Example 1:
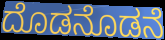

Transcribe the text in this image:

ದೊಡನೊಡನೆ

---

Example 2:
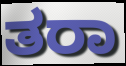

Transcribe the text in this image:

ತರಾ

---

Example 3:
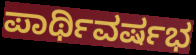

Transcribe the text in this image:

ಪಾರ್ಥಿವರ್ಷಭ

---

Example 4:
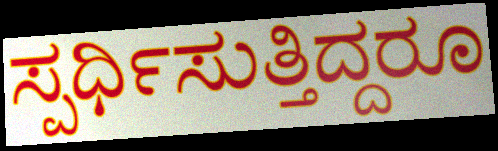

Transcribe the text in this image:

ಸ್ಪರ್ಧಿಸುತ್ತಿದ್ದರೂ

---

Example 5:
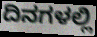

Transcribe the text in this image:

ದಿನಗಳಲ್ಲಿ